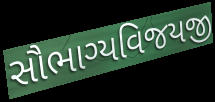
સૌભાગ્યવિજયજી